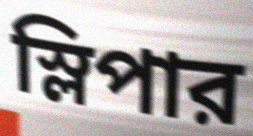
স্লিপার